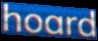
hoard